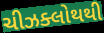
ચીઝક્લોથથી